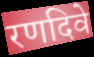
रणदिवे